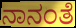
ನಾನಂತೆ